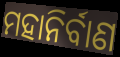
ମହାନିର୍ବାଣ